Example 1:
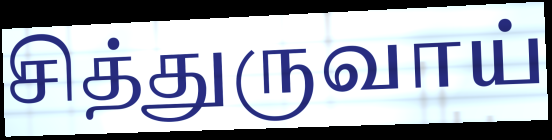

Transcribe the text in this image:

சித்துருவாய்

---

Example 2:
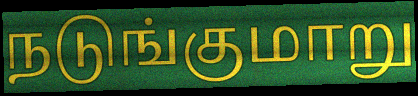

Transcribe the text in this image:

நடுங்குமாறு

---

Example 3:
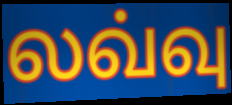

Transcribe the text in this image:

லவ்வு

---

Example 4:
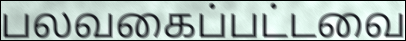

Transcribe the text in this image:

பலவகைப்பட்டவை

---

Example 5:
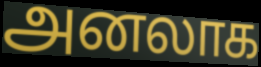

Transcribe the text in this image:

அனலாக